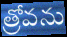
త్రోవను